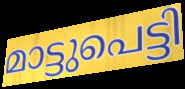
മാട്ടുപെട്ടി